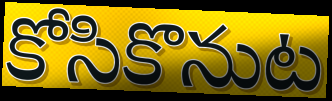
కోసికొనుట